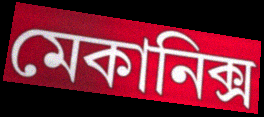
মেকানিক্স